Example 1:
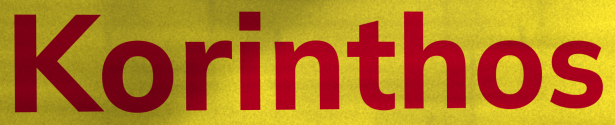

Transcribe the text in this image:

Korinthos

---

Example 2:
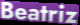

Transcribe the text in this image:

Beatriz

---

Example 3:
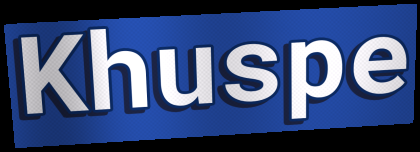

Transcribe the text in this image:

Khuspe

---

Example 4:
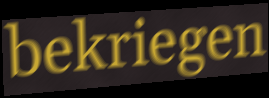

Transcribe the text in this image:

bekriegen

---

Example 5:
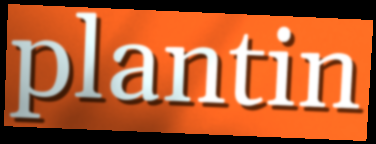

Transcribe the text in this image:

plantin